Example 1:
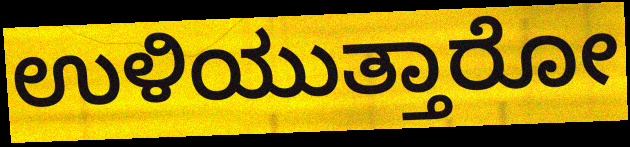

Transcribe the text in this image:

ಉಳಿಯುತ್ತಾರೋ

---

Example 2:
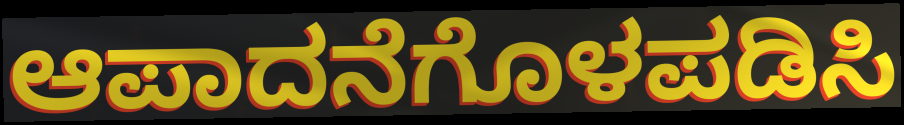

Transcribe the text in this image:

ಆಪಾದನೆಗೊಳಪಡಿಸಿ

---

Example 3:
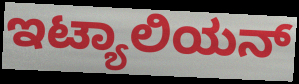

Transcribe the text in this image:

ಇಟ್ಯಾಲಿಯನ್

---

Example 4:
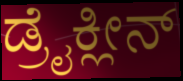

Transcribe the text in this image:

ಡ್ರೈಕ್ಲೀನ್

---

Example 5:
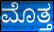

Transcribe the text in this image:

ಮೊತ್ತ